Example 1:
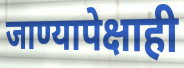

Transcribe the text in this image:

जाण्यापेक्षाही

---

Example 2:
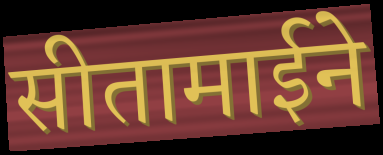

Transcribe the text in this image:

सीतामाईने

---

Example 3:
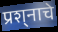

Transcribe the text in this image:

प्रश्नाचे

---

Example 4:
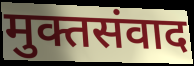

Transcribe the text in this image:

मुक्तसंवाद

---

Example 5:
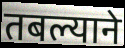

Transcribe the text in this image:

तबल्याने